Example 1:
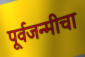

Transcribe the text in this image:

पूर्वजन्मीचा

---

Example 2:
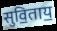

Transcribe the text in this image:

सुवि॒ताय॒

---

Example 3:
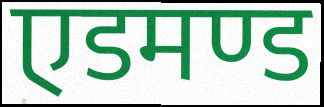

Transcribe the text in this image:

एडमण्ड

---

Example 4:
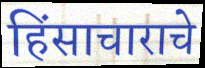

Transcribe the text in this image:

हिंसाचाराचे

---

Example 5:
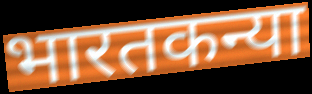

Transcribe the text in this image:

भारतकन्या